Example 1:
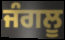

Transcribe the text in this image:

ਜੰਗਲੂ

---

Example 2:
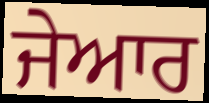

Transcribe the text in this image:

ਜੇਆਰ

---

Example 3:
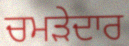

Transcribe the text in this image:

ਚਮੜੇਦਾਰ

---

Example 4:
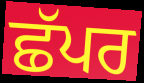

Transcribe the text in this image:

ਛੱਪਰ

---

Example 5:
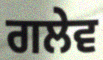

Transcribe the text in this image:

ਗਲੇਵ